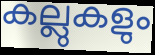
കല്ലുകളും